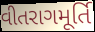
વીતરાગમૂર્તિ